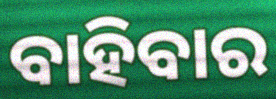
ବାହିବାର